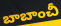
బాబాంచీ